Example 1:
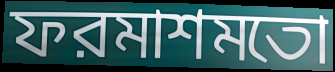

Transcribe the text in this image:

ফরমাশমতো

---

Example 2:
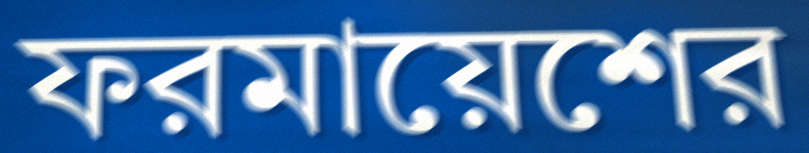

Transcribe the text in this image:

ফরমায়েশের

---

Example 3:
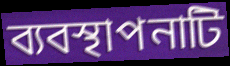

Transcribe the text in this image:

ব্যবস্থাপনাটি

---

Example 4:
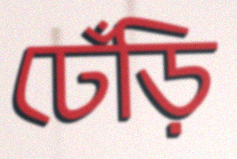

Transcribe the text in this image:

ঢেঁড়ি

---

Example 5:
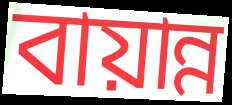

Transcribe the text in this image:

বায়ান্ন